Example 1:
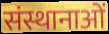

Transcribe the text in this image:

संस्थानाओं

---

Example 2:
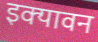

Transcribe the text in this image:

इक्यावन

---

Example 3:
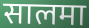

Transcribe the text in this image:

सालमा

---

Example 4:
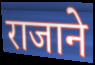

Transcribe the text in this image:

राजाने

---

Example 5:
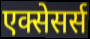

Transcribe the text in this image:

एक्सेसर्स